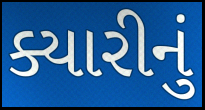
ક્યારીનું